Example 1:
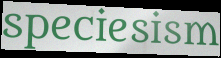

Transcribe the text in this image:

speciesism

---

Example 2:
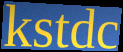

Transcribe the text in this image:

kstdc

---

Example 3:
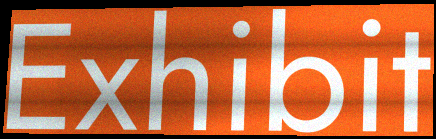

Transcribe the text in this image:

Exhibit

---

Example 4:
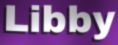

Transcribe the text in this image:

Libby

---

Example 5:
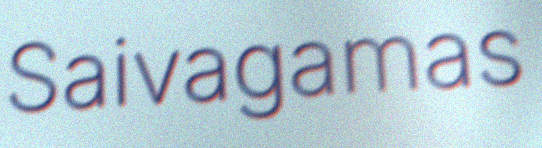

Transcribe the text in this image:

Saivagamas